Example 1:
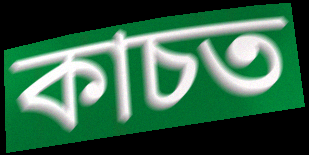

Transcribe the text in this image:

কাচত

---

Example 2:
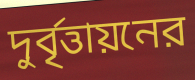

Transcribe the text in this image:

দুর্বৃত্তায়নের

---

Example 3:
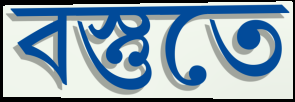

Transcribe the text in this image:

বস্তুতে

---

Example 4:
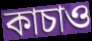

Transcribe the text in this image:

কাচাও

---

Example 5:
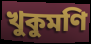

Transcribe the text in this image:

খুকুমণি